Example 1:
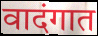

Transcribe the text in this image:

वादंगात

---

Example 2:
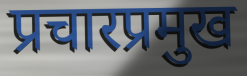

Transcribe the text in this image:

प्रचारप्रमुख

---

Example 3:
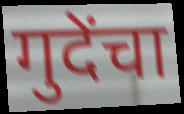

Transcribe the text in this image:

गुदेंचा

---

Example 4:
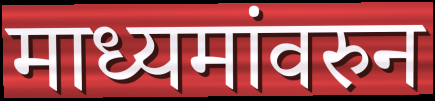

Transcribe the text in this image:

माध्यमांवरुन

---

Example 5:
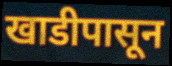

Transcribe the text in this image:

खाडीपासून